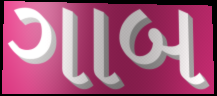
ગાબ